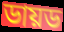
ডায়ড